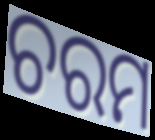
ଚରମ